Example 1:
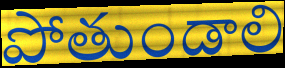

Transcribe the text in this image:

పోతుండాలి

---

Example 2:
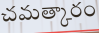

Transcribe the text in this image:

చమత్కారం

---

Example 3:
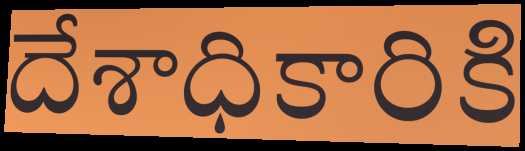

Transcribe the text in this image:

దేశాధికారికి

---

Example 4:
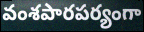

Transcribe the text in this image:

వంశపారపర్యంగా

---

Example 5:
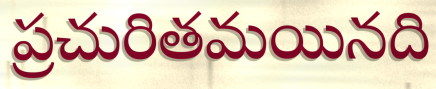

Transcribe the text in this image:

ప్రచురితమయినది